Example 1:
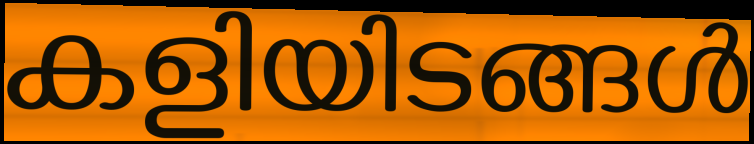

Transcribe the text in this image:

കളിയിടങ്ങൾ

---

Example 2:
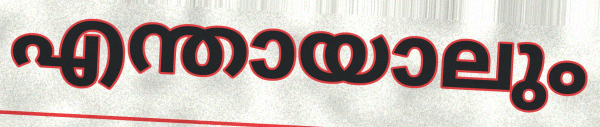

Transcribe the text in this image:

എന്തായാലും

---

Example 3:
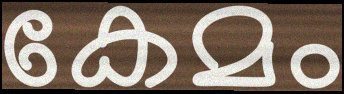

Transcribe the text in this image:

കേമം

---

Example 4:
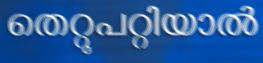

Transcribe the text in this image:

തെറ്റുപറ്റിയാൽ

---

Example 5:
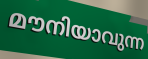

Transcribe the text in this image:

മൗനിയാവുന്ന